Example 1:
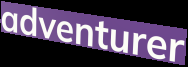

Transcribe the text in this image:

adventurer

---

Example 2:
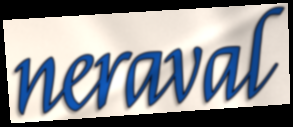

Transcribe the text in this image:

neraval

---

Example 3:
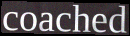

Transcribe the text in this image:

coached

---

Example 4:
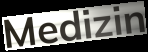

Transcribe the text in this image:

Medizin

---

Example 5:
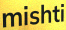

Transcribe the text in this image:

mishti